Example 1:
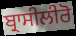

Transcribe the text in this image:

ਬ੍ਰਾਸੀਲੀਰੋ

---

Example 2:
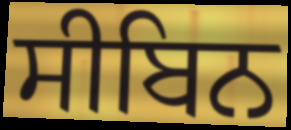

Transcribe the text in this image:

ਸੀਬਿਨ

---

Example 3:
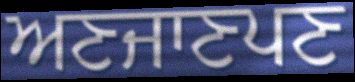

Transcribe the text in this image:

ਅਣਜਾਣਪਣ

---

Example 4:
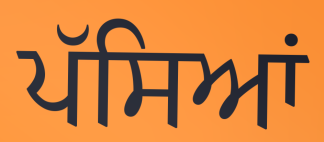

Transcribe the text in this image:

ਪੱਸਿਆਂ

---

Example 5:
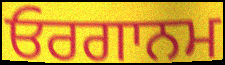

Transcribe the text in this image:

ਓਰਗਾਨਮ